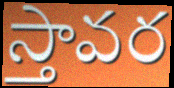
స్తావర